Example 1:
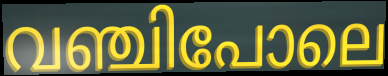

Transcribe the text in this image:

വഞ്ചിപോലെ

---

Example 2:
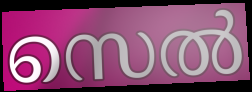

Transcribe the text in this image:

സെൽ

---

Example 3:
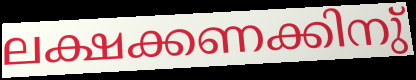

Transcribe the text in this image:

ലക്ഷക്കണക്കിനു്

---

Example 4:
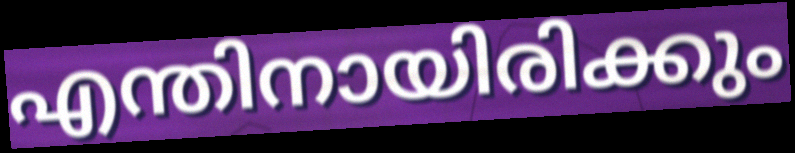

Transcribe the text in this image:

എന്തിനായിരിക്കും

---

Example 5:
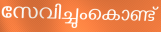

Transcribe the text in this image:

സേവിച്ചുംകൊണ്ട്